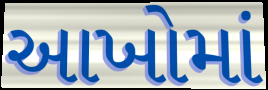
આખોમાં